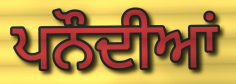
ਪਨੌਦੀਆਂ